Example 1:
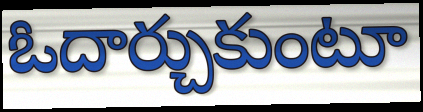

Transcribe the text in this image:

ఓదార్చుకుంటూ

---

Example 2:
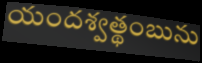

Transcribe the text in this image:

యందశ్వత్థంబును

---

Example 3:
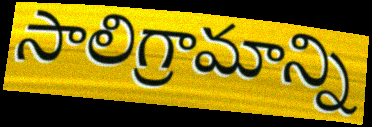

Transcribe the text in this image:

సాలిగ్రామాన్ని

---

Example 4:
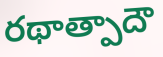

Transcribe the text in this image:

రథాత్పాదౌ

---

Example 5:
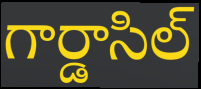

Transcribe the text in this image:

గార్డాసిల్